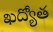
ఖద్యోత